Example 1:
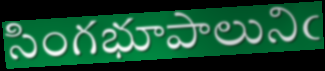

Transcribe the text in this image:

సింగభూపాలునిఁ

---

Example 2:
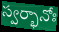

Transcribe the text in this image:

స్వర్భానోః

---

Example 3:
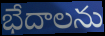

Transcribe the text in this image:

భేదాలను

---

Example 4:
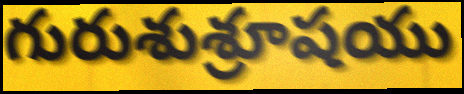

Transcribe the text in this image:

గురుశుశ్రూషయు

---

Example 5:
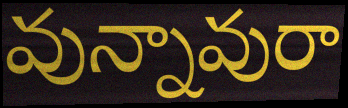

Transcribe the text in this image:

వున్నావురా